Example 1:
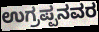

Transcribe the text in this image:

ಉಗ್ರಪ್ಪನವರ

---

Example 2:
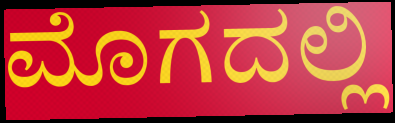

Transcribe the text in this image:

ಮೊಗದಲ್ಲಿ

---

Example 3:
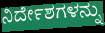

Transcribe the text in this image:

ನಿರ್ದೇಶಗಳನ್ನು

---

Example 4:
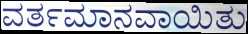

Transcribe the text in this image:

ವರ್ತಮಾನವಾಯಿತು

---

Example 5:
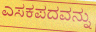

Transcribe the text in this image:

ಎಸಕಪದವನ್ನು